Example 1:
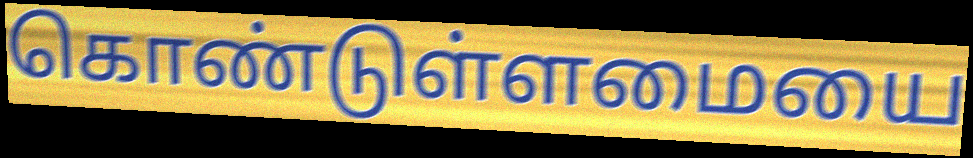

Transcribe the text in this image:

கொண்டுள்ளமையை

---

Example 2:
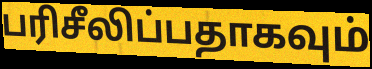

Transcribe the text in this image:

பரிசீலிப்பதாகவும்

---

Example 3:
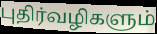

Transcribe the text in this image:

புதிர்வழிகளும்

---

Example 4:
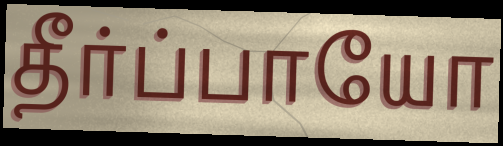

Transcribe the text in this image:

தீர்ப்பாயோ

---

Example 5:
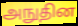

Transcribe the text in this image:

அநுதின